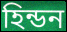
হিন্ডন